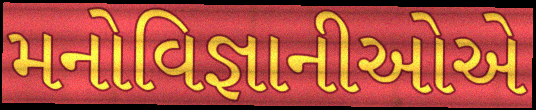
મનોવિજ્ઞાનીઓએ